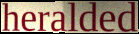
heralded